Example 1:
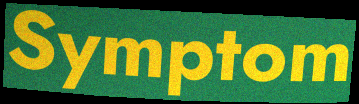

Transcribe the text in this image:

Symptom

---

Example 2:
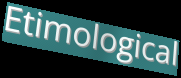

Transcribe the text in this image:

Etimological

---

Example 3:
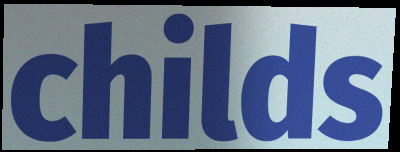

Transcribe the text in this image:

childs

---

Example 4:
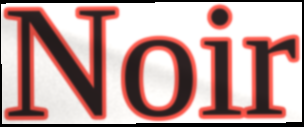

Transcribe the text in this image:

Noir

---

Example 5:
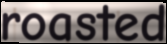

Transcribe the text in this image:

roasted